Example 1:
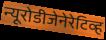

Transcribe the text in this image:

न्यूरोडीजेनेरेटिव्ह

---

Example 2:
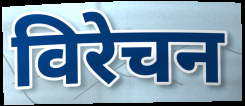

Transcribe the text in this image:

विरेचन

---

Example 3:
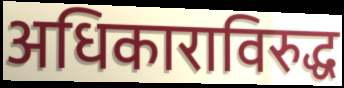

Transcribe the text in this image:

अधिकाराविरुद्ध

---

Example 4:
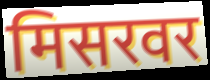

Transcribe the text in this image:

मिसरवर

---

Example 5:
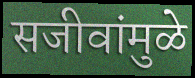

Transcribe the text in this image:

सजीवांमुळे